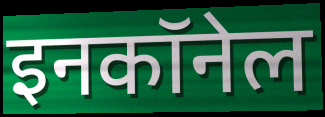
इनकॉनेल